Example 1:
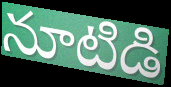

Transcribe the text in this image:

నూటిడి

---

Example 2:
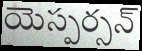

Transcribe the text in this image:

యెస్పర్సన్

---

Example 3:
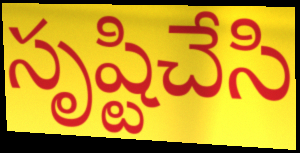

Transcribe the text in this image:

సృష్టిచేసి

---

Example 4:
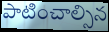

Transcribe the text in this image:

పాటించాల్సిన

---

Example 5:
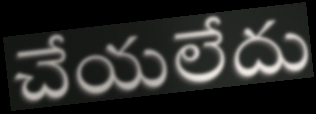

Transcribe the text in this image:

చేయలేదు